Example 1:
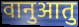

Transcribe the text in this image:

वानुआतु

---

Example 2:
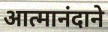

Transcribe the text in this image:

आत्मानंदाने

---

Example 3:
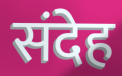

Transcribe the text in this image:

संदेह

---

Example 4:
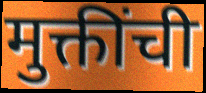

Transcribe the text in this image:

मुक्तींची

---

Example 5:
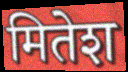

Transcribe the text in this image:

मितेश